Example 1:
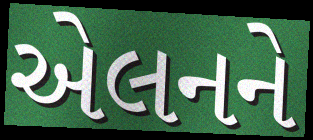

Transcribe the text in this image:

એલનને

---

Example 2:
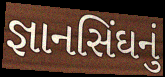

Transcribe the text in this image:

જ્ઞાનસિંઘનું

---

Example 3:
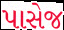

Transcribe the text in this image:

પાસેજ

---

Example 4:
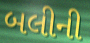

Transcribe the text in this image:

બલીની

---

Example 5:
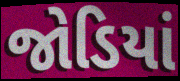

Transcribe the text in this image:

જોડિયાં